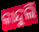
କାନ୍ଦୁଲି